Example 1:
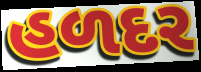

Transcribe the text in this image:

હળદર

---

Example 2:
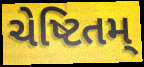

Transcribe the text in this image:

ચેષ્ટિતમ્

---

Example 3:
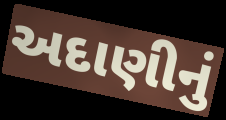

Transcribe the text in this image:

અદાણીનું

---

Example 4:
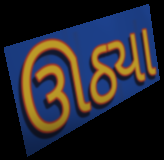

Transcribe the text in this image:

ઊઠ્યા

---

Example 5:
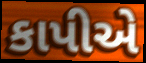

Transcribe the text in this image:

કાપીએ